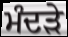
ਮੰਦੜੇ